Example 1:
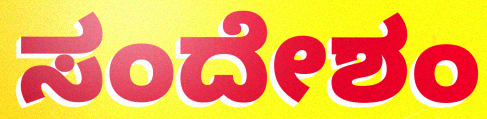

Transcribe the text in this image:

ಸಂದೇಶಂ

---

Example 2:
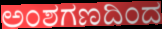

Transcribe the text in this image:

ಅಂಶಗಣದಿಂದ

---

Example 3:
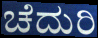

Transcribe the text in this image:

ಚೆದುರಿ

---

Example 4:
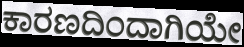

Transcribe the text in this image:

ಕಾರಣದಿಂದಾಗಿಯೇ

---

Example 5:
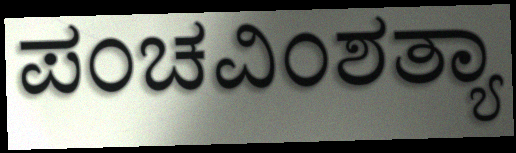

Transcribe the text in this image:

ಪಂಚವಿಂಶತ್ಯಾ